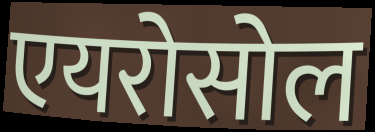
एयरोसोल